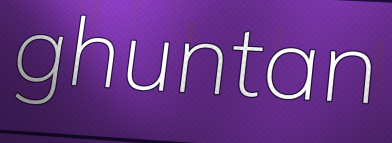
ghuntan